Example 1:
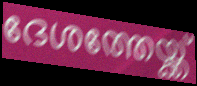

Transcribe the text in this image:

ദേശത്തേയ്ക്ക്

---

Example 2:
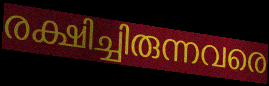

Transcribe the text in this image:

രക്ഷിച്ചിരുന്നവരെ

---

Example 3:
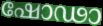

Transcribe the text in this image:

ഷോഢാ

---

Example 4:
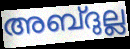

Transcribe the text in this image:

അബ്ദുല്ല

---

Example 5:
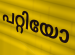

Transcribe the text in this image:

പറ്റിയോ